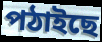
পঠাইছে